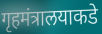
गृहमंत्रालयाकडे